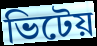
ভিটেয়